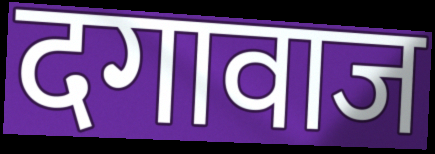
दगावाज